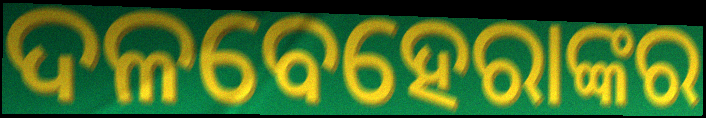
ଦଳବେହେରାଙ୍କର